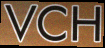
VCH